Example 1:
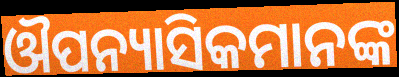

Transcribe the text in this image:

ଔପନ୍ୟାସିକମାନଙ୍କ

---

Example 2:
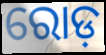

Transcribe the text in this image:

ରୋଡ଼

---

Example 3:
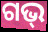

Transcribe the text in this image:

ଗଭ୍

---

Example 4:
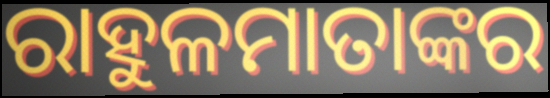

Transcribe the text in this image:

ରାହୁଳମାତାଙ୍କର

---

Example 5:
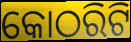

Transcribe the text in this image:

କୋଠରିଟି